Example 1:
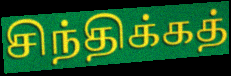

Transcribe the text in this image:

சிந்திக்கத்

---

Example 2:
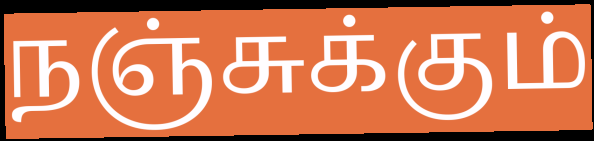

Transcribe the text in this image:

நஞ்சுக்கும்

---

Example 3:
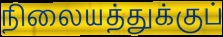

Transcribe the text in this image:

நிலையத்துக்குப்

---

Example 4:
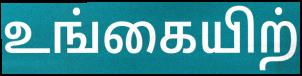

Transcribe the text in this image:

உங்கையிற்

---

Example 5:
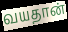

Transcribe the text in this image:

வயதான்